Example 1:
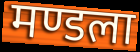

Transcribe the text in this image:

मण्डला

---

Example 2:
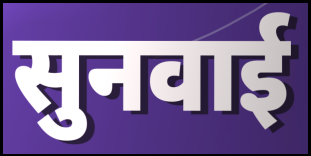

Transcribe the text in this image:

सुनवाई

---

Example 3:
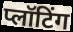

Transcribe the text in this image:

प्लॉटिंग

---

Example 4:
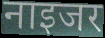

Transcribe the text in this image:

नाइजर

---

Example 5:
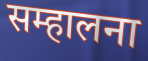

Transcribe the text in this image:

सम्हालना